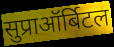
सुप्राऑर्बिटल